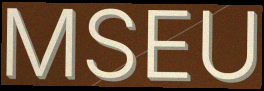
MSEU